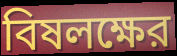
বিষলক্ষের